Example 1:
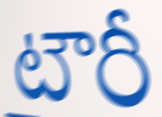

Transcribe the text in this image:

టౌరీ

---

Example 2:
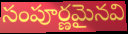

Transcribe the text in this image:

సంపూర్ణమైనవి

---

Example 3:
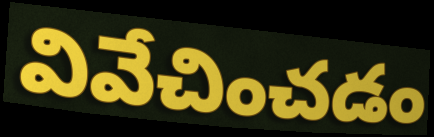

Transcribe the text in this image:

వివేచించడం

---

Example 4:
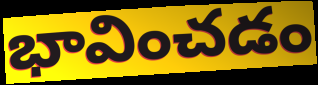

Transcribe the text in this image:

భావించడం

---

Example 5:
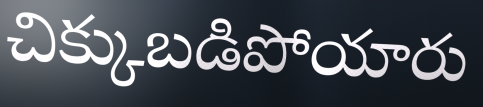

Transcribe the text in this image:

చిక్కుబడిపోయారు